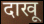
दाखू